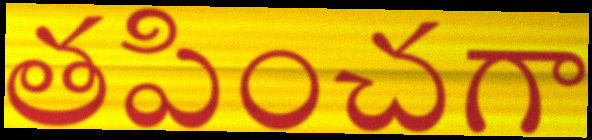
తపించగా